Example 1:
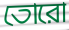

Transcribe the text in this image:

তোরো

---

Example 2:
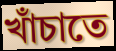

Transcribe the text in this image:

খাঁচাতে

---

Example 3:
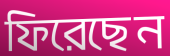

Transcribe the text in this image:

ফিরেছেন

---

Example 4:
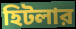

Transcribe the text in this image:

হিটলার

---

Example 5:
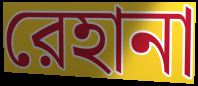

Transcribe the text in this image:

রেহানা